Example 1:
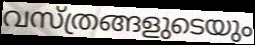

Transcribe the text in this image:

വസ്ത്രങ്ങളുടെയും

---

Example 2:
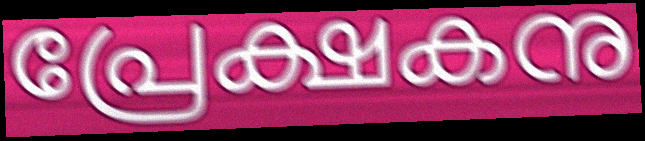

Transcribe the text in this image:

പ്രേക്ഷകനു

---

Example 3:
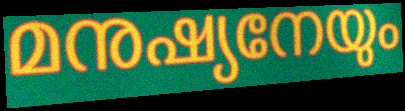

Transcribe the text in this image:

മനുഷ്യനേയും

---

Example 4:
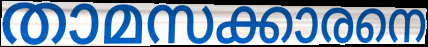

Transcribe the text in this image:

താമസക്കാരനെ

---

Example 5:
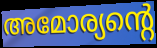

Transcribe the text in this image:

അമോര്യന്റെ